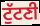
ਟੁੱਟਣੀ